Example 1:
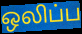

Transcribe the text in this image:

ஒலிப்ப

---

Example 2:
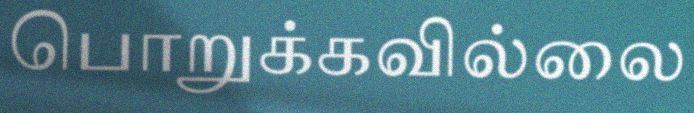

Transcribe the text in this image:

பொறுக்கவில்லை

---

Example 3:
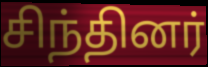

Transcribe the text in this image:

சிந்தினர்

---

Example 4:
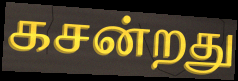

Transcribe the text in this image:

கசன்றது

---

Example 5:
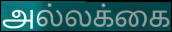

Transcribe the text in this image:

அல்லக்கை